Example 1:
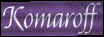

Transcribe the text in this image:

Komaroff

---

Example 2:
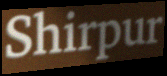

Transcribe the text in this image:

Shirpur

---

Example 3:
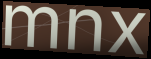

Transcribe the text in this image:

mnx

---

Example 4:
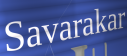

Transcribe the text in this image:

Savarakar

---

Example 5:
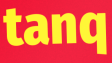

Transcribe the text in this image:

tanq